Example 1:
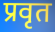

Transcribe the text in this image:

प्रवृत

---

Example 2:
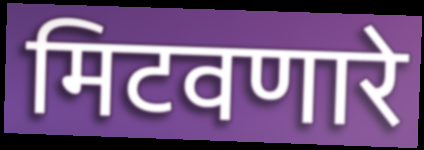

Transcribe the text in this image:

मिटवणारे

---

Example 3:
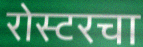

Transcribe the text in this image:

रोस्टरचा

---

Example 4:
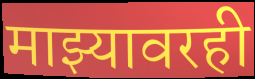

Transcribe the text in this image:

माझ्यावरही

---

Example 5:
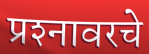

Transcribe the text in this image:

प्रश्नावरचे